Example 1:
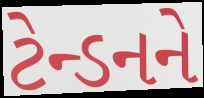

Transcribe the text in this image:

ટેન્ડનને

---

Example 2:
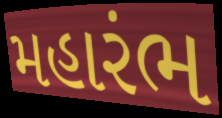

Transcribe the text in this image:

મહારંભ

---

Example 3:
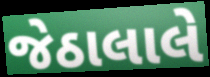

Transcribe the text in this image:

જેઠાલાલે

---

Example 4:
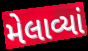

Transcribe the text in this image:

મેલાવ્યાં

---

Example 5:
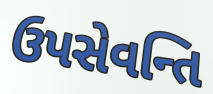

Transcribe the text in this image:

ઉપસેવન્તિ